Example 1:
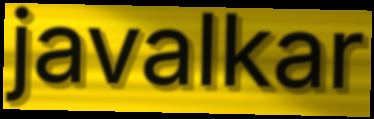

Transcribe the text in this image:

javalkar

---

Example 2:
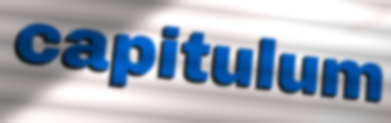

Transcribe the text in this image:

capitulum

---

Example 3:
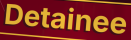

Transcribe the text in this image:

Detainee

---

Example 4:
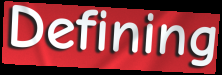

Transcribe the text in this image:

Defining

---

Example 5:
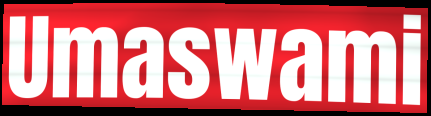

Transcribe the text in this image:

Umaswami